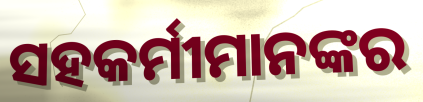
ସହକର୍ମୀମାନଙ୍କର